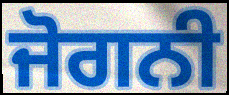
ਜੋਗਨੀ